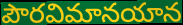
పౌరవిమానయాన